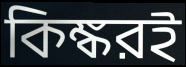
কিঙ্করই